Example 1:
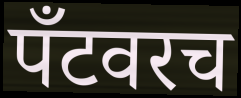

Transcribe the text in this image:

पँटवरच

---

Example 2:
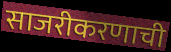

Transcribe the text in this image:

साजरीकरणाची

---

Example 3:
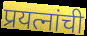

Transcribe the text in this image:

प्रयत्नांची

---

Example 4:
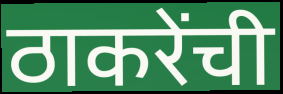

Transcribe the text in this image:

ठाकरेंची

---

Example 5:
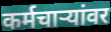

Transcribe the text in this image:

कर्मचाऱ्यांवर